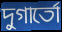
দুগার্তো